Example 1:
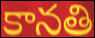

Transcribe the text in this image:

కానతి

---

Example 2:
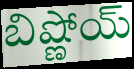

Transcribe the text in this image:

బిష్ణోయ్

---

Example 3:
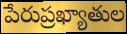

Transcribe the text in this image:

పేరుప్రఖ్యాతుల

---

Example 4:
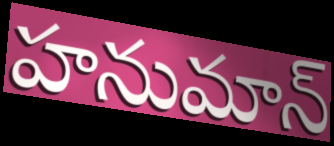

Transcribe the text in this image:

హనుమాన్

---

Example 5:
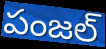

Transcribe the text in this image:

పంజల్